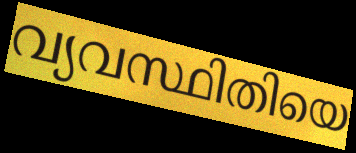
വ്യവസ്ഥിതിയെ